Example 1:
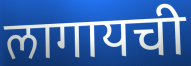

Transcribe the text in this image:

लागायची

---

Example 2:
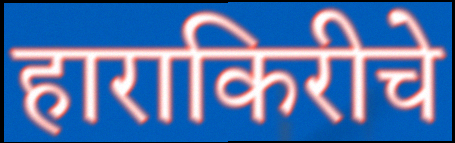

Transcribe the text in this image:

हाराकिरीचे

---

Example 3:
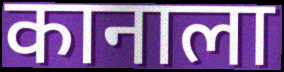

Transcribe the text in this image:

कानाला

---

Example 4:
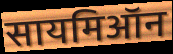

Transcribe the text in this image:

सायमिऑन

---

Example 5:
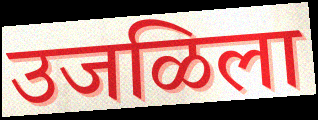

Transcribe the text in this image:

उजळिला